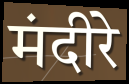
मंदीरे